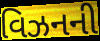
વિઝનની